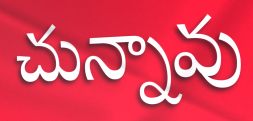
చున్నావు